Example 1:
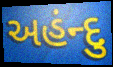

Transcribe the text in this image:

અહંન્દુ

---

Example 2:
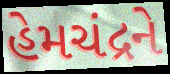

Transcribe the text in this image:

હેમચંદ્રને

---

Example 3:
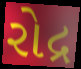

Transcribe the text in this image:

રોદ્ર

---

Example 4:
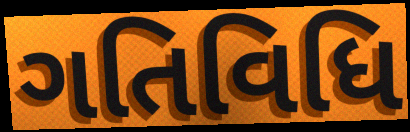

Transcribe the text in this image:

ગતિવિધિ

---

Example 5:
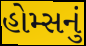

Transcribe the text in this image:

હોમ્સનું